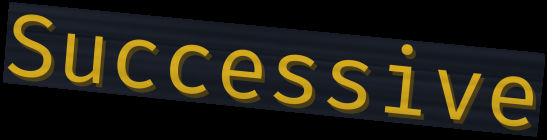
Successive